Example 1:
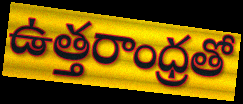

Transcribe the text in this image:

ఉత్తరాంధ్రతో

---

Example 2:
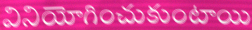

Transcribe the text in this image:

వినియోగించుకుంటాయి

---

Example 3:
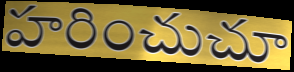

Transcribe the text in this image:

హరించుచూ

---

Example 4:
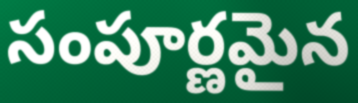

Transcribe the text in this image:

సంపూర్ణమైన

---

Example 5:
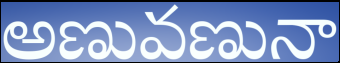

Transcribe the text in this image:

అణువణునా